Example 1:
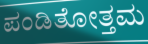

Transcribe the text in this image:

ಪಂಡಿತೋತ್ತಮ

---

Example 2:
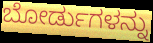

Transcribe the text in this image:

ಬೋರ್ಡುಗಳನ್ನು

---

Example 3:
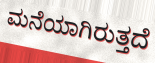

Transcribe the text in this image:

ಮನೆಯಾಗಿರುತ್ತದೆ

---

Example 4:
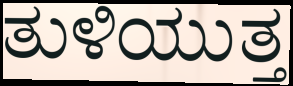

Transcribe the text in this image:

ತುಳಿಯುತ್ತ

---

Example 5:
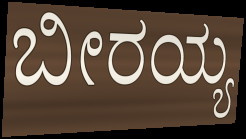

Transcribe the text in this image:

ಬೀರಯ್ಯ